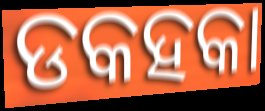
ଡକହକା